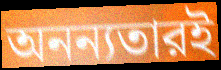
অনন্যতারই